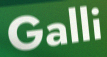
Galli